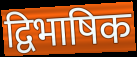
द्विभाषिक